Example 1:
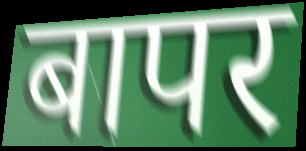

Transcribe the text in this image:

बापर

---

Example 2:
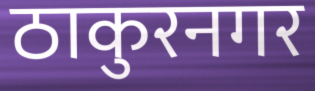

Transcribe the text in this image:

ठाकुरनगर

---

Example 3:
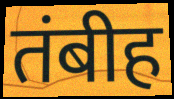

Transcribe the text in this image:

तंबीह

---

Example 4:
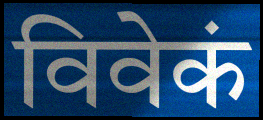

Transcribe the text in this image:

विवेकं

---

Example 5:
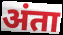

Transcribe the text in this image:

अंता